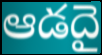
ఆడదై